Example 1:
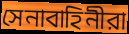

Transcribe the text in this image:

সেনাবাহিনীরা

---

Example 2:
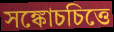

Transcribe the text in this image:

সঙ্কোচচিত্তে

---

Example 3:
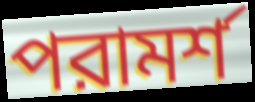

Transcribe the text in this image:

পরামর্শ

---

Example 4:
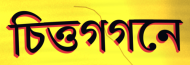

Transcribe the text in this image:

চিত্তগগনে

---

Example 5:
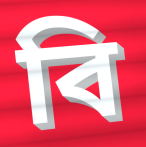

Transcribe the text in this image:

বি